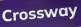
Crossway